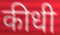
कीधी